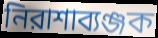
নিরাশাব্যঞ্জক